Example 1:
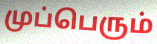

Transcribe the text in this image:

முப்பெரும்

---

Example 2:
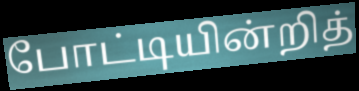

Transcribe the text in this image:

போட்டியின்றித்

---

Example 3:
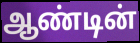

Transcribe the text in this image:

ஆண்டின்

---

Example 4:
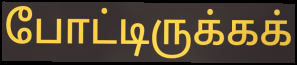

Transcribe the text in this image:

போட்டிருக்கக்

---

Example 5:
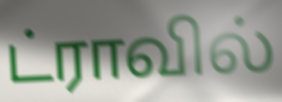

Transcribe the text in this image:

ட்ராவில்